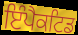
ਇੰਪੈਕਟਿਡ